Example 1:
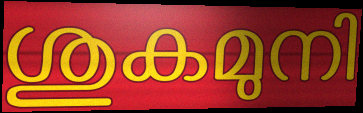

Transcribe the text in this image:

ശുകമുനി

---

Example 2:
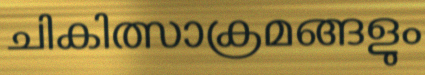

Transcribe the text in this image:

ചികിത്സാക്രമങ്ങളും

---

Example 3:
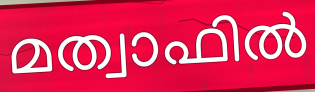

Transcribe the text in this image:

മത്വാഫിൽ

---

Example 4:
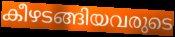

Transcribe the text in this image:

കീഴടങ്ങിയവരുടെ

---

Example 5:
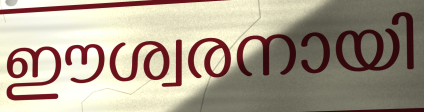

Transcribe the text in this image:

ഈശ്വരനായി